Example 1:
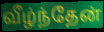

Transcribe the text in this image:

வீழ்ந்தேன்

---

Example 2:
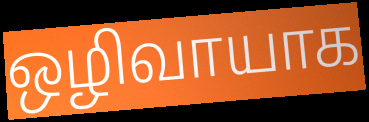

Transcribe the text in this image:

ஒழிவாயாக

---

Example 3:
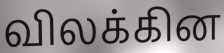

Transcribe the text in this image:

விலக்கின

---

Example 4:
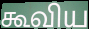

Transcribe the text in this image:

கூவிய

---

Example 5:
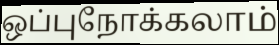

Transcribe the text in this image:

ஒப்புநோக்கலாம்